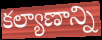
కల్యాణాన్ని